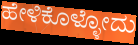
ಹೇಳಿಕೊಳ್ಳೋದು